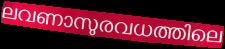
ലവണാസുരവധത്തിലെ